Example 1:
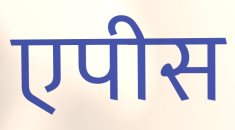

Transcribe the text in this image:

एपीस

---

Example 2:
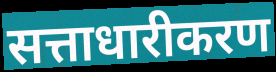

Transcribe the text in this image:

सत्ताधारीकरण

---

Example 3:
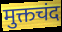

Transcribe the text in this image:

मुक्तचंद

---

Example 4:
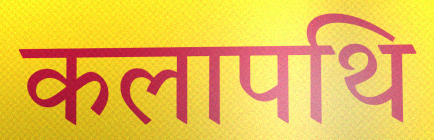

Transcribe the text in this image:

कलापथि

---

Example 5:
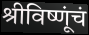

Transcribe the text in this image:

श्रीविष्णूंचं